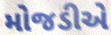
મોજડીએ